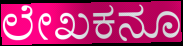
ಲೇಖಕನೂ